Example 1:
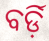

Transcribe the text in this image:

ବର୍ଡ଼ି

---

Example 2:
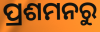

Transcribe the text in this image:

ପ୍ରଶମନରୁ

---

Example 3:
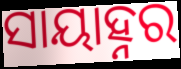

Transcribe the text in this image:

ସାୟାହ୍ନର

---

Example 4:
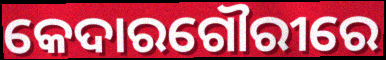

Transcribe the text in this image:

କେଦାରଗୌରୀରେ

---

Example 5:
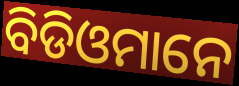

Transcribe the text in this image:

ବିଡିଓମାନେ